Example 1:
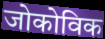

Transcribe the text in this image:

जोकोविक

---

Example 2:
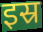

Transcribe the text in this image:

इस्र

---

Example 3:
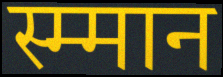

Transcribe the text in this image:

स्म्मान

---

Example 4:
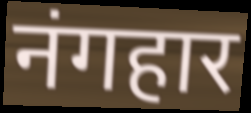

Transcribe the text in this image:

नंगहार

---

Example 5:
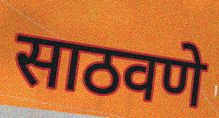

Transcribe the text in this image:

साठवणे